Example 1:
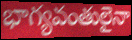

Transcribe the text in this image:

భాగ్యవంతులైనా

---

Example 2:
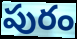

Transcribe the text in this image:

పురం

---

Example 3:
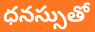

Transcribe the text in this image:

ధనస్సుతో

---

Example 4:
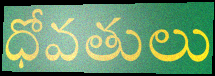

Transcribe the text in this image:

ధోవతులు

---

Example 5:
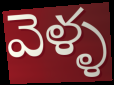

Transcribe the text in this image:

వెళ్ళ